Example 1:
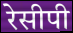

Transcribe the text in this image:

रेसीपी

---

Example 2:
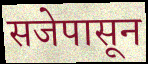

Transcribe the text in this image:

सजेपासून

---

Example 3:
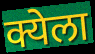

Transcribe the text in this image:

क्येला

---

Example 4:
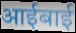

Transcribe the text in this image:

आईबाई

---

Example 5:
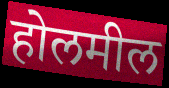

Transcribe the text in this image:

होलमील